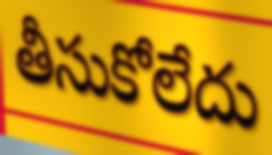
తీసుకోలేదు